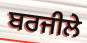
ਬਰਜੀਲੇ